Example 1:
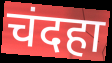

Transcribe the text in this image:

चंदहा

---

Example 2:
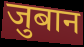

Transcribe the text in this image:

जुबान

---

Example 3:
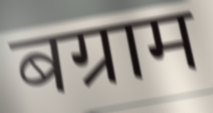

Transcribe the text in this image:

बग्राम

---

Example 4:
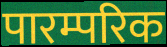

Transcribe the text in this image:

पारम्परिक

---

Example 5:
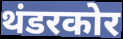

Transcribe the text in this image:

थंडरकोर